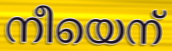
നീയെന്